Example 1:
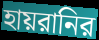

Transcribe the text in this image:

হায়রানির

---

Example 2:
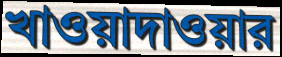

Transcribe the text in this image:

খাওয়াদাওয়ার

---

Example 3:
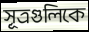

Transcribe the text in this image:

সূত্রগুলিকে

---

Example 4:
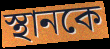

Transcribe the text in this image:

স্থানকে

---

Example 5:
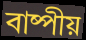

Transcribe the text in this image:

বাষ্পীয়